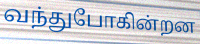
வந்துபோகின்றன